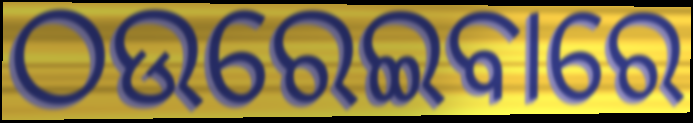
ଠଉରେଇବାରେ